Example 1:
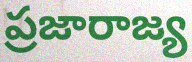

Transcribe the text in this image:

ప్రజారాజ్య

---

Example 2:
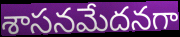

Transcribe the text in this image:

శాసనమేదనగా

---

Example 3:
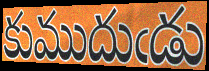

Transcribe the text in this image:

కుముదుఁడు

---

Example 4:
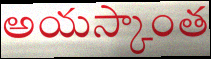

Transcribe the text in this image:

అయస్కాంత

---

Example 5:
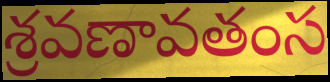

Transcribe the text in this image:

శ్రవణావతంస